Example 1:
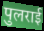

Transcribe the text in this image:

पुलराई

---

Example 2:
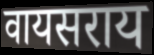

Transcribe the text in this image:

वायसराय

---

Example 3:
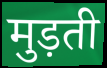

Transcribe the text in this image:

मुड़ती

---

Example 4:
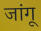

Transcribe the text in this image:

जांगू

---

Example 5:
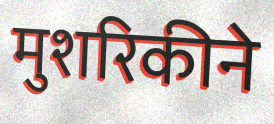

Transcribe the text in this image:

मुशरिकीने